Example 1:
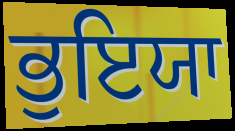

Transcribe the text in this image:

ਭੁਇਯਾ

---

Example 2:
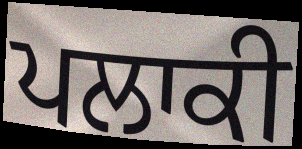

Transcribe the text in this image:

ਪਲਾਕੀ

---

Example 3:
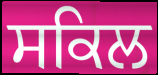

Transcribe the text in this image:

ਸਕਿਲ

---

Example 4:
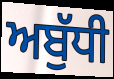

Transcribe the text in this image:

ਅਬੁੱਧੀ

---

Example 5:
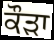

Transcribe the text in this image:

ਕੌਡ਼ਾ